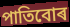
পাতিবোৰ